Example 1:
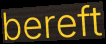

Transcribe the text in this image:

bereft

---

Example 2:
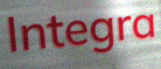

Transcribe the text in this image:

Integra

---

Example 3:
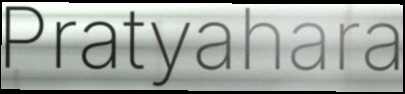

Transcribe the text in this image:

Pratyahara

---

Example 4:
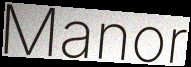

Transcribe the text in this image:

Manor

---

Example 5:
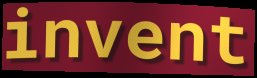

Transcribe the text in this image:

invent